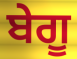
ਬੇਗੂ